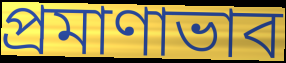
প্রমাণাভাব